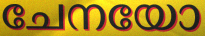
ചേനയോ